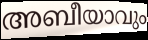
അബീയാവും